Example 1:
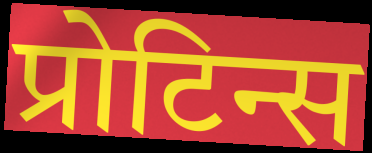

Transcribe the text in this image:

प्रोटिन्स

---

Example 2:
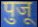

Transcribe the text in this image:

पुजू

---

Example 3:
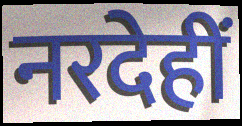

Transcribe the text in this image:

नरदेहीं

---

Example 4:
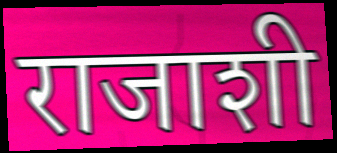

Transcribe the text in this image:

राजाशी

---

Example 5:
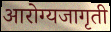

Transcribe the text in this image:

आरोग्यजागृती